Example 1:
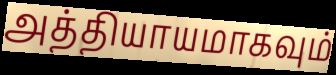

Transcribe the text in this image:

அத்தியாயமாகவும்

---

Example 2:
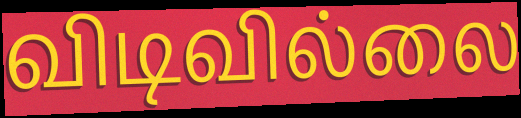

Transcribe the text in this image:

விடிவில்லை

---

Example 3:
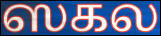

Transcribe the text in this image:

ஸகல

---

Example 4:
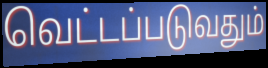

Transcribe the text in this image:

வெட்டப்படுவதும்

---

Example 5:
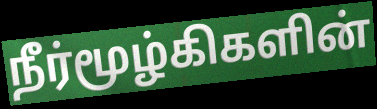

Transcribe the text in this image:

நீர்மூழ்கிகளின்